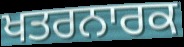
ਖਤਰਨਾਰਕ